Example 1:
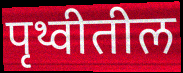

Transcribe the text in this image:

पृथ्वीतील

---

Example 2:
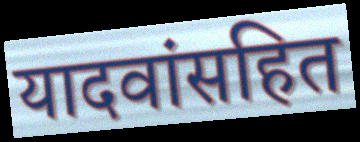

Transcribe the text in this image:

यादवांसहित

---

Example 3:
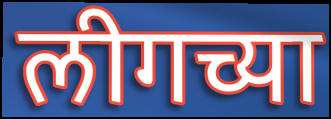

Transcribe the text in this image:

लीगच्या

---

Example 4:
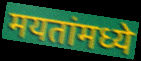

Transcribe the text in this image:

मयतांमध्ये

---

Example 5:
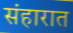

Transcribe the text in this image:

संहारात